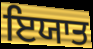
ਇਯਾਤ